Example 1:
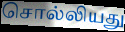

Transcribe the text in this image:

சொல்லியது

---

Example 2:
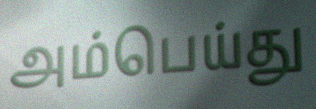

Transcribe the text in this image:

அம்பெய்து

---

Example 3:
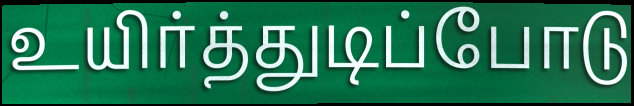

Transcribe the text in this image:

உயிர்த்துடிப்போடு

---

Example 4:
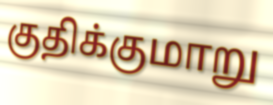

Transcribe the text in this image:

குதிக்குமாறு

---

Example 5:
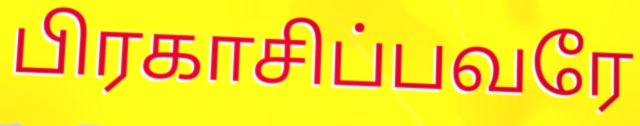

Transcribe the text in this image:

பிரகாசிப்பவரே